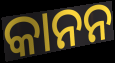
କାନନ